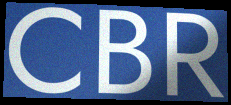
CBR